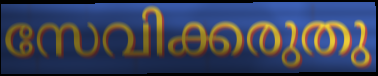
സേവിക്കരുതു